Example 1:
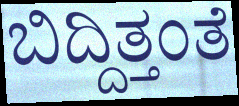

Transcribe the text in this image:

ಬಿದ್ದಿತ್ತಂತೆ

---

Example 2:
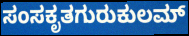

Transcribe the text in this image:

ಸಂಸಕೃತಗುರುಕುಲಮ್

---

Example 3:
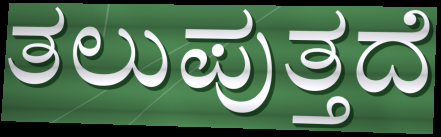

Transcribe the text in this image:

ತಲುಪುತ್ತದೆ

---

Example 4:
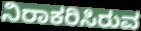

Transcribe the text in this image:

ನಿರಾಕರಿಸಿರುವ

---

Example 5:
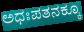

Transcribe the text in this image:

ಅಧಃಪತನಕ್ಕೂ